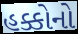
હક્કોનો